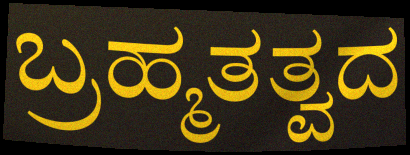
ಬ್ರಹ್ಮತತ್ವದ